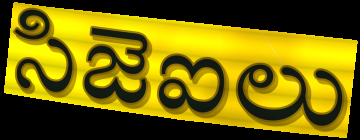
సిజెఐలు